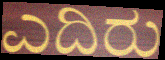
ಎದಿರು